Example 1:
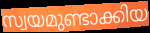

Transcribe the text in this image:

സ്വയമുണ്ടാക്കിയ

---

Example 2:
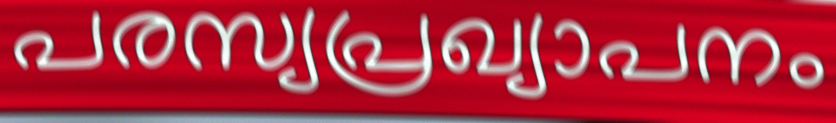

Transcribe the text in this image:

പരസ്യപ്രഖ്യാപനം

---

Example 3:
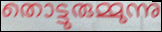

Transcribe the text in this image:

തൊട്ടുരുമ്മുന്നു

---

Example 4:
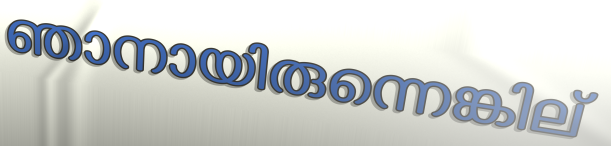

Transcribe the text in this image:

ഞാനായിരുന്നെങ്കില്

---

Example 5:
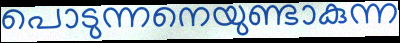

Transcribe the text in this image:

പൊടുന്നനെയുണ്ടാകുന്ന